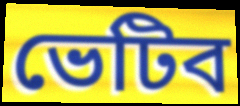
ভেটিব